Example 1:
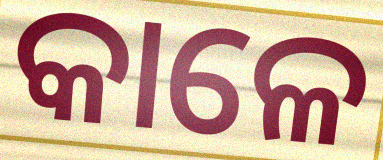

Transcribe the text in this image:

କାଳେ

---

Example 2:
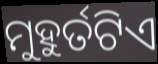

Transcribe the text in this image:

ମୁହୁର୍ତଟିଏ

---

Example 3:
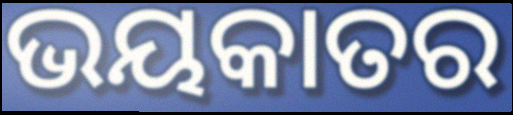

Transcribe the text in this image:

ଭୟକାତର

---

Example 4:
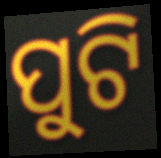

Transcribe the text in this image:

ପୁଟି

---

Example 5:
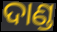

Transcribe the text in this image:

ଦାଣ୍ଡ